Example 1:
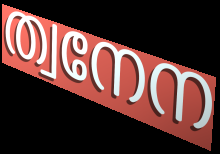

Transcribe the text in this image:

ത്വനേന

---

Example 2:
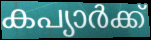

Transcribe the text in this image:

കപ്യാർക്ക്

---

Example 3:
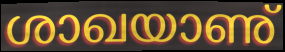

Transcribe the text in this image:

ശാഖയാണു്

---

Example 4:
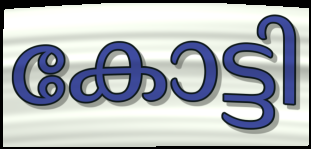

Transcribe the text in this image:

കോട്ടി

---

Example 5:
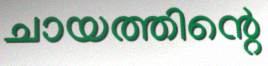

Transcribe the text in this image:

ചായത്തിന്റെ